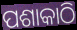
ପଶାକାଠି